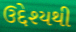
ઉદ્દેશ્યથી